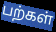
பற்கள்